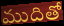
ముదితో